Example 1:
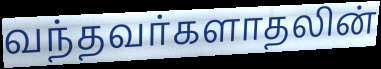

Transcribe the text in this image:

வந்தவர்களாதலின்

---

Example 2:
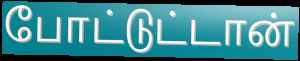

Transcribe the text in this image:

போட்டுட்டான்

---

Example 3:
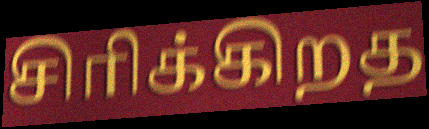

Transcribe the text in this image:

சிரிக்கிறத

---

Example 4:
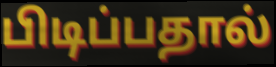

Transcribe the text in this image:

பிடிப்பதால்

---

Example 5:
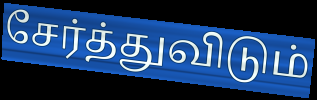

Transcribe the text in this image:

சேர்த்துவிடும்